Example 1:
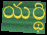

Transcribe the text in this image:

యర్థి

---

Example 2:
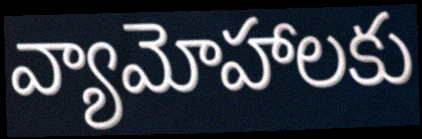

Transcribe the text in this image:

వ్యామోహాలకు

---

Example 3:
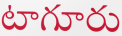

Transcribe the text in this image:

టాగూరు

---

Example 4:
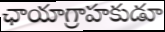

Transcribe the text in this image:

ఛాయాగ్రాహకుడూ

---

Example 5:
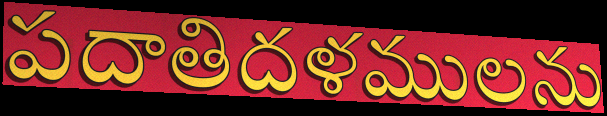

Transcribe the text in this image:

పదాతిదళములను